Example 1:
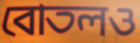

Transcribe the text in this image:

বোতলও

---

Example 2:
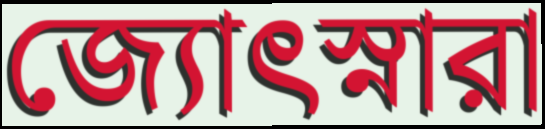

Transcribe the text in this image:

জ্যোৎস্নারা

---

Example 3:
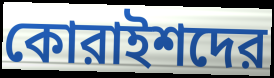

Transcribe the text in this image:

কোরাইশদের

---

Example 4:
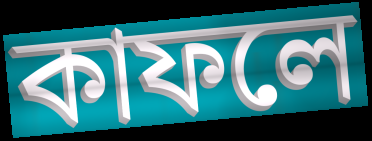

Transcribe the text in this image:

কাফলে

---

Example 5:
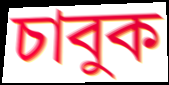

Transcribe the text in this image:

চাবুক